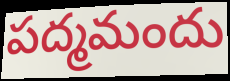
పద్మమందు